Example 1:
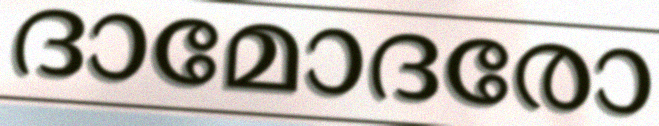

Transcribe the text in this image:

ദാമോദരോ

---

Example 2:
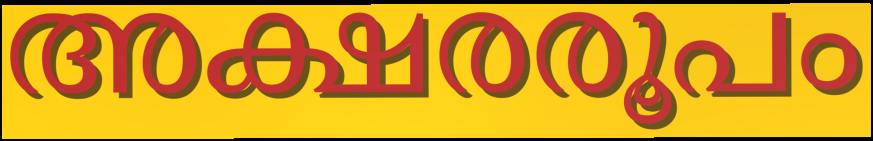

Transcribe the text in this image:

അക്ഷരരൂപം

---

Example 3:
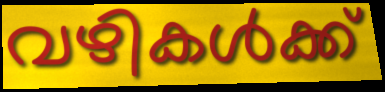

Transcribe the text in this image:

വഴികൾക്ക്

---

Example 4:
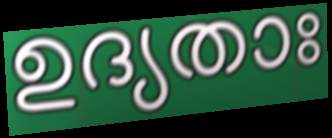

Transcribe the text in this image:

ഉദ്യതാഃ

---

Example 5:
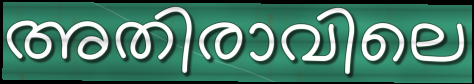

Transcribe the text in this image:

അതിരാവിലെ